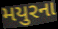
મયુરના